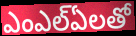
ఎంఎల్ఏలతో